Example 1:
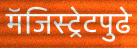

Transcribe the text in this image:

मॅजिस्ट्रेटपुढे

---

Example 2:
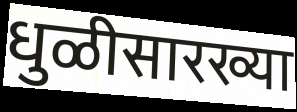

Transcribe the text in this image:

धुळीसारख्या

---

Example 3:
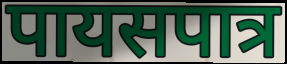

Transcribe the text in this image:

पायसपात्र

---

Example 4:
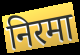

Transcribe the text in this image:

निरमा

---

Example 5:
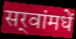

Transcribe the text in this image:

सर्वांमधें